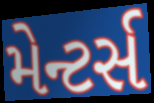
મેન્ટર્સ